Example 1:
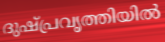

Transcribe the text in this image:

ദുഷ്പ്രവൃത്തിയിൽ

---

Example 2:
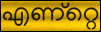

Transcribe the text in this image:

എണ്റ്റെ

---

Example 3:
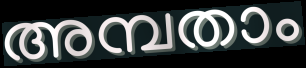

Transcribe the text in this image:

അമ്പതാം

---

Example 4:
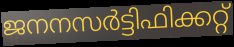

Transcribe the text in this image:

ജനനസർട്ടിഫിക്കറ്റ്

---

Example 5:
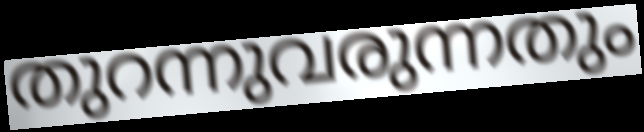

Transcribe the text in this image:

തുറന്നുവരുന്നതും